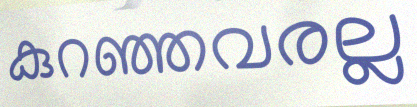
കുറഞ്ഞവരല്ല